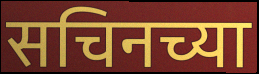
सचिनच्या